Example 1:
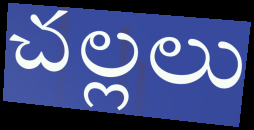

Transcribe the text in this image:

చల్లలు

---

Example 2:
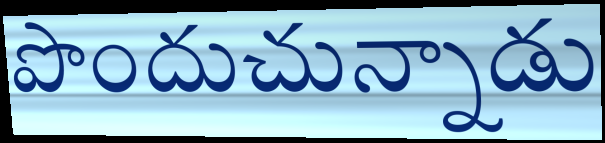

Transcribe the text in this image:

పొందుచున్నాడు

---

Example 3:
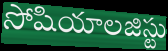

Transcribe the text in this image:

సోషియాలజిస్టు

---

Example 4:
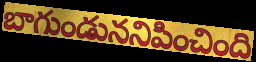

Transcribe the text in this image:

బాగుండుననిపించింది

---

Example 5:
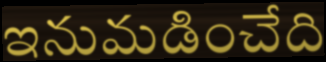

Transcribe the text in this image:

ఇనుమడించేది